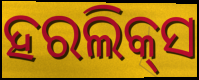
ହରଲିକ୍‍ସ